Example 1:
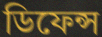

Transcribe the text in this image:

ডিফেন্স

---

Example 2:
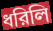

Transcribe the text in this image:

ধরিলি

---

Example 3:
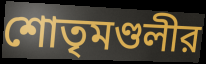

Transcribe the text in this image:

শোতৃমণ্ডলীর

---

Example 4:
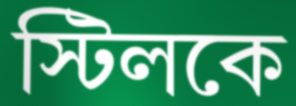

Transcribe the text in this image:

স্টিলকে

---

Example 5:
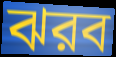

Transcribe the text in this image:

ঝরব